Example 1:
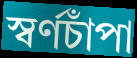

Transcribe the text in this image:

স্বর্ণচাঁপা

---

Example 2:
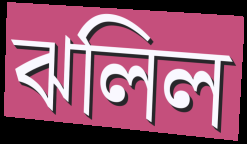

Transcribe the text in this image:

ঝলিল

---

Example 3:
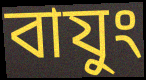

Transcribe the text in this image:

বাযুং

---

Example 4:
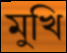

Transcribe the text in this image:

মুখি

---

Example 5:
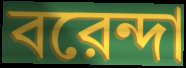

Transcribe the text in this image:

বরেন্দা